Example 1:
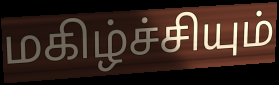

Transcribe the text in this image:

மகிழ்ச்சியும்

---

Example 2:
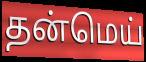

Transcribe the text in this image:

தன்மெய்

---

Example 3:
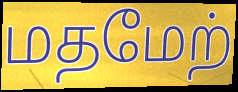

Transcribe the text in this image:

மதமேற்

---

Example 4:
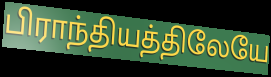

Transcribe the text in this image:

பிராந்தியத்திலேயே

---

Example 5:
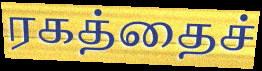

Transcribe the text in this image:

ரகத்தைச்